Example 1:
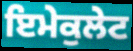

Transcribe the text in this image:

ਇਮੇਕੁਲੇਟ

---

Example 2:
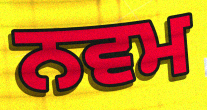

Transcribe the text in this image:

ਨਵਮ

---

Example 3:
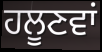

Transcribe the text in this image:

ਹਲੂਣਵਾਂ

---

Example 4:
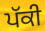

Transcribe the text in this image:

ਪੱਕੀ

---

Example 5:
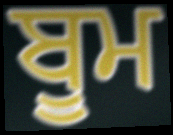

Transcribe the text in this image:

ਬੂਮ